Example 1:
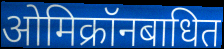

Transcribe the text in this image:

ओमिक्रॉनबाधित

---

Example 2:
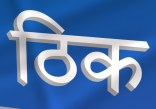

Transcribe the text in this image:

ठिक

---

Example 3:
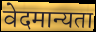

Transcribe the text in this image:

वेदमान्यता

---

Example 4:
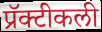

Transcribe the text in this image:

प्रॅक्टीकली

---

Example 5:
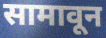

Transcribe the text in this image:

सामावून